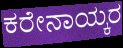
ಕರೇನಾಯ್ಕರ